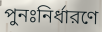
পুনঃনির্ধারণে